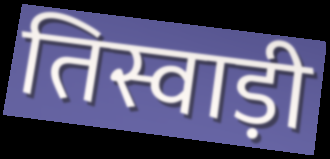
तिस्वाड़ी